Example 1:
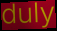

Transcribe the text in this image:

duly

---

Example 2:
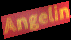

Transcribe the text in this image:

Angelin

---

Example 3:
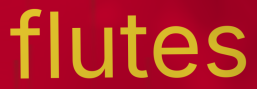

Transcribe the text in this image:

flutes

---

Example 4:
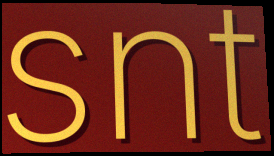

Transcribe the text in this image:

snt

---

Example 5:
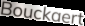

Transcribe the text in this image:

Bouckaert